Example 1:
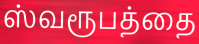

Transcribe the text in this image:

ஸ்வரூபத்தை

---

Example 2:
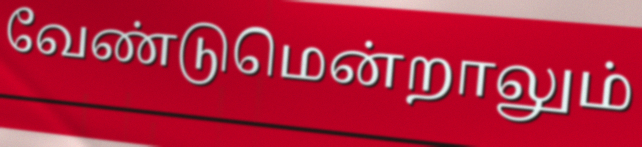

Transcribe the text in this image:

வேண்டுமென்றாலும்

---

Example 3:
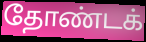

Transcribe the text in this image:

தோண்டக்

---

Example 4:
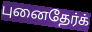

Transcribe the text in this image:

புனைதேர்க்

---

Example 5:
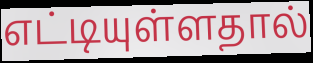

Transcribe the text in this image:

எட்டியுள்ளதால்